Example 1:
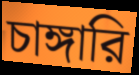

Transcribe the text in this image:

চাঙ্গারি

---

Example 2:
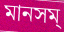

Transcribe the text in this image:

মানসম্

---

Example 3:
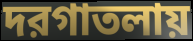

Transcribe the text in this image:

দরগাতলায়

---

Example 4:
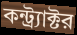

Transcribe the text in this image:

কন্ট্র্যাক্টর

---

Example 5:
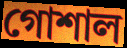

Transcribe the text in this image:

গোশাল